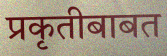
प्रकृतीबाबत